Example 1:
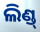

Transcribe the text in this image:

ଲିଣ୍ଡ୍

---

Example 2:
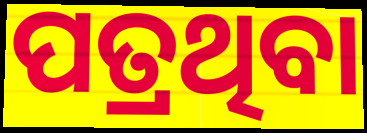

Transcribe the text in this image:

ପତ୍ରଥିବା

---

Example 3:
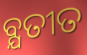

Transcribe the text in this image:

ବ୍ଯତୀତ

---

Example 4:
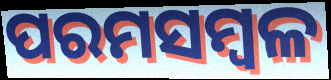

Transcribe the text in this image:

ପରମସମ୍ବଳ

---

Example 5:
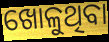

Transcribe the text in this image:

ଖୋଳୁଥିବା